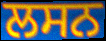
ਲਸਨ